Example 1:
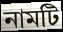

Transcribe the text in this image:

নামটি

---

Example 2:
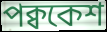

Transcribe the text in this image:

পক্বকেশ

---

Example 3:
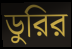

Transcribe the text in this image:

ডুরির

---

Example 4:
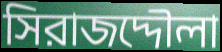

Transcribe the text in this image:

সিরাজদ্দৌলা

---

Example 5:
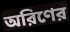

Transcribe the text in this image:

অরিণের